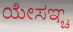
ಯೇಸಞ್ಚ